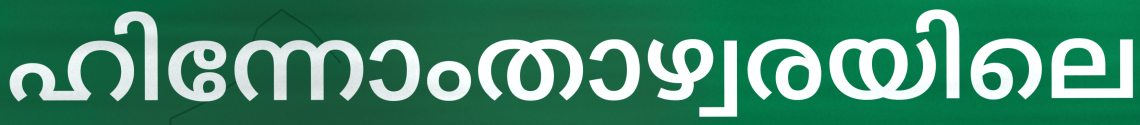
ഹിന്നോംതാഴ്വരയിലെ